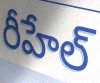
రీహేల్